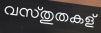
വസ്തുതകള്